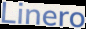
Linero